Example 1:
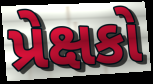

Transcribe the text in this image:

પ્રેક્ષકો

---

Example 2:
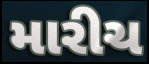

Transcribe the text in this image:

મારીચ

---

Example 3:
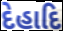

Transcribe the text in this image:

દેહાદિ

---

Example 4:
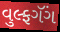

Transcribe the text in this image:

વુલ્ફગૅંગ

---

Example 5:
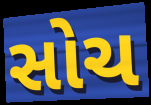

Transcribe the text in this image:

સોચ